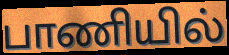
பாணியில்